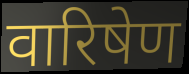
वारिषेण